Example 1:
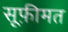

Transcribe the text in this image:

सूफ़ीमत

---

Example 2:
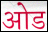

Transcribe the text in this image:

ओड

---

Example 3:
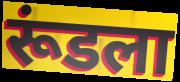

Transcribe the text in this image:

रूंडला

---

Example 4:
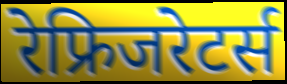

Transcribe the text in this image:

रेफ्रिजरेटर्स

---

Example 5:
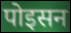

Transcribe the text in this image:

पोइसन